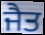
ਜੈਤ